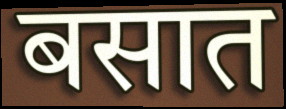
बसात